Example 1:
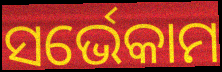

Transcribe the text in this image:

ସର୍ଭେକାମ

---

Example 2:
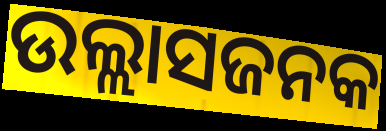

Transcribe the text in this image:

ଉଲ୍ଲାସଜନକ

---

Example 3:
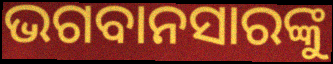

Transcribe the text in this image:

ଭଗବାନସାରଙ୍କୁ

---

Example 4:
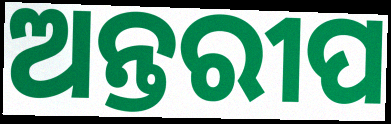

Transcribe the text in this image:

ଅନ୍ତରୀପ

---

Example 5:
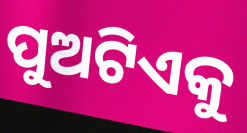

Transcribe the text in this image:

ପୁଅଟିଏକୁ